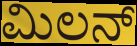
ಮಿಲನ್